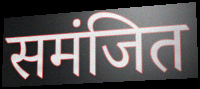
समंजित